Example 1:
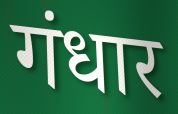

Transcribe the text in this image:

गंधार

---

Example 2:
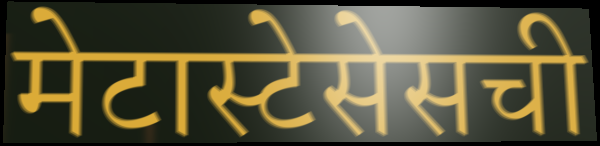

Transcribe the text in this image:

मेटास्टेसेसची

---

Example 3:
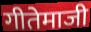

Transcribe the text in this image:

गीतेमाजी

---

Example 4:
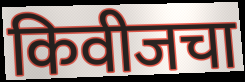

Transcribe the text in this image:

किवीजचा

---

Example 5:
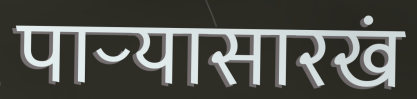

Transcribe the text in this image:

पाऱ्यासारखं